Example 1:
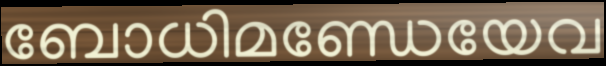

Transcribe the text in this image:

ബോധിമണ്ഡേയേവ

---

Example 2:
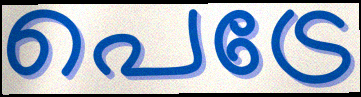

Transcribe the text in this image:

പെട്രേ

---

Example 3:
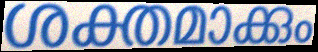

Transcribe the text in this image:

ശക്തമാക്കും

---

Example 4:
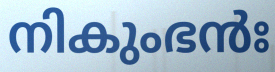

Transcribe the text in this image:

നികുംഭൻഃ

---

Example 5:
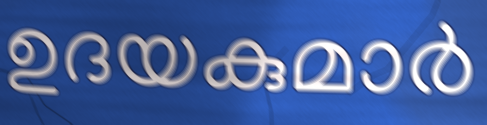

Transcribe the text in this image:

ഉദയകുമാർ